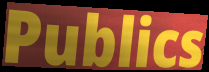
Publics